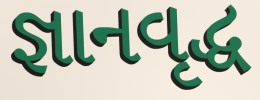
જ્ઞાનવૃદ્ધ